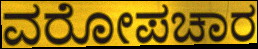
ವರೋಪಚಾರ